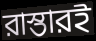
রাস্তারই